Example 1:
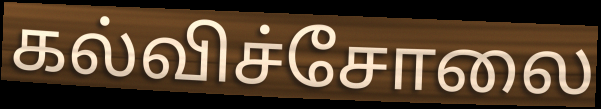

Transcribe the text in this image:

கல்விச்சோலை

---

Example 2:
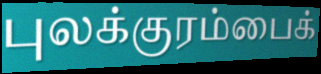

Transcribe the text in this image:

புலக்குரம்பைக்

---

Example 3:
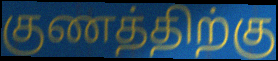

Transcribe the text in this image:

குணத்திற்கு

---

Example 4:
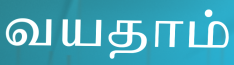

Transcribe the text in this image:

வயதாம்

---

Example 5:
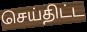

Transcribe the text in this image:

செய்திட்ட